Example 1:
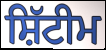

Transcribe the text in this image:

ਸ਼ਿੱਟੀਮ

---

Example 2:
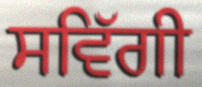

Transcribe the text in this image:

ਸਵਿੱਗੀ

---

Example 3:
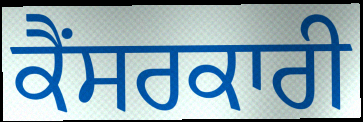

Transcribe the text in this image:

ਕੈਂਸਰਕਾਰੀ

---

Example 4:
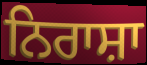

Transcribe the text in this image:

ਨਿਰਾਸ਼ਾ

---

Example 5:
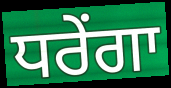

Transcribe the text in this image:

ਧਰੇਂਗਾ